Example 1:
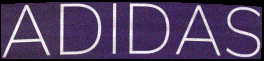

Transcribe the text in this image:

ADIDAS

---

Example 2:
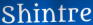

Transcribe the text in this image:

Shintre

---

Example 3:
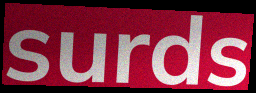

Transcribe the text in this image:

surds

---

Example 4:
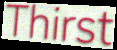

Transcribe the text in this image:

Thirst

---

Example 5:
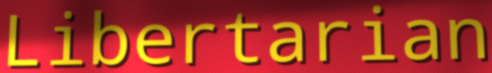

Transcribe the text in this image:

Libertarian